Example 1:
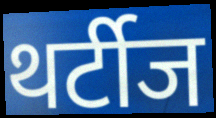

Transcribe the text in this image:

थर्टीज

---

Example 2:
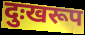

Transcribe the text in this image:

दुःखरूप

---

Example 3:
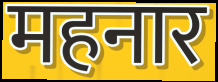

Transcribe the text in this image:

महनार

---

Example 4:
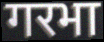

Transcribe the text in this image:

गरभा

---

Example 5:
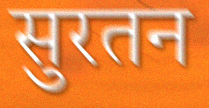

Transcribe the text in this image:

सुरतन